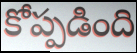
కోప్పడింది